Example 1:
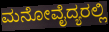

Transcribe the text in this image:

ಮನೋವೈದ್ಯರಲ್ಲಿ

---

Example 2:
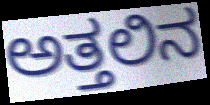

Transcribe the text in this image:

ಅತ್ತಲಿನ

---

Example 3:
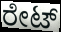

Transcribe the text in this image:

ರೇಟ್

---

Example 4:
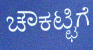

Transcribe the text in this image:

ಚೌಕಟ್ಟಿಗೆ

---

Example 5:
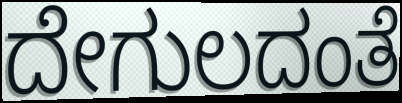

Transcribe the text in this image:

ದೇಗುಲದಂತೆ